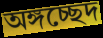
অঙ্গচ্ছেদ